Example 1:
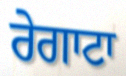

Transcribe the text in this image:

ਰੇਗਾਟਾ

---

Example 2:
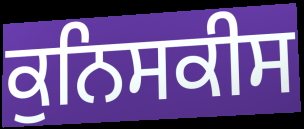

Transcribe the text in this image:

ਕੁਨਿਸਕੀਸ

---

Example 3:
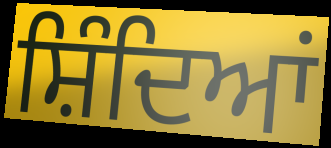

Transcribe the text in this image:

ਸ਼ਿੰਦਿਆਂ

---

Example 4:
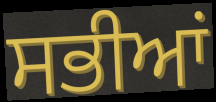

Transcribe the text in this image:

ਸਭੀਆਂ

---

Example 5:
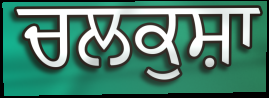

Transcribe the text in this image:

ਚਲਕੁਸ਼ਾ